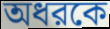
অধরকে